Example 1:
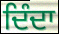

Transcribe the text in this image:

ਦਿੰਦਾ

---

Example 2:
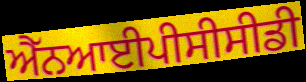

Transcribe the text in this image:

ਐੱਨਆਈਪੀਸੀਸੀਡੀ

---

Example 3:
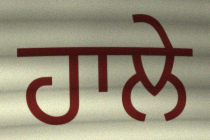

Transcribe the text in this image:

ਹਾਲੇ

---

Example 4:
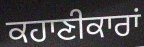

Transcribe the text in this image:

ਕਹਾਣੀਕਾਰਾਂ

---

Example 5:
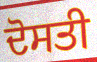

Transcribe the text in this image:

ਦੋਸਤੀ